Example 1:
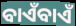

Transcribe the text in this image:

ବାଏଁବାଏଁ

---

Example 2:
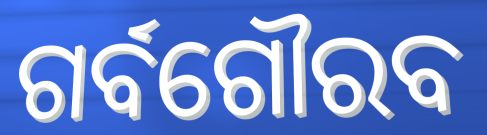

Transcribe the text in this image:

ଗର୍ବଗୌରବ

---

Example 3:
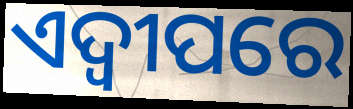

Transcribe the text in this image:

ଏଦ୍ୱୀପରେ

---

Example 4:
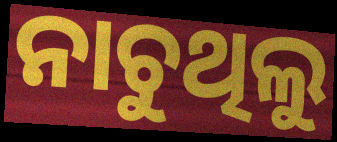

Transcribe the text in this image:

ନାଚୁଥିଲୁ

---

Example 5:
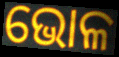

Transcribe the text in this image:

ଭୋଳ